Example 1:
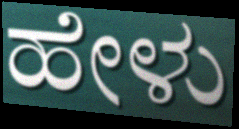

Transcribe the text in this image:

ಹೇಳು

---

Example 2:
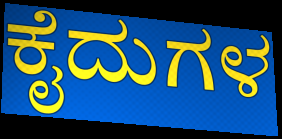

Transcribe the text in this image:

ಕೈದುಗಳ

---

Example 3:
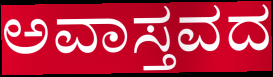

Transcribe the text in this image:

ಅವಾಸ್ತವದ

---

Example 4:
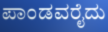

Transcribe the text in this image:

ಪಾಂಡವರೈದು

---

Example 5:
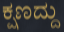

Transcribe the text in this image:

ಕ್ಷಣದ್ದು